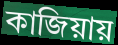
কাজিয়ায়